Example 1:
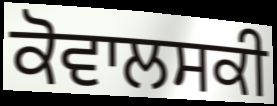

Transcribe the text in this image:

ਕੋਵਾਲਸਕੀ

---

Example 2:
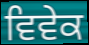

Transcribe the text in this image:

ਵਿਵੇਕ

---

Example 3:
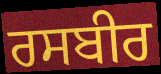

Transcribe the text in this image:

ਰਸਬੀਰ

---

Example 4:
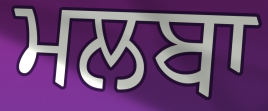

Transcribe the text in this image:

ਮਲਬਾ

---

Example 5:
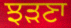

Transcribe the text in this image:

ਝੜਣਾ